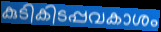
കുടികിടപ്പവകാശം